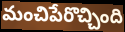
మంచిపేరొచ్చింది